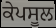
ਕੇਪਸੂਲ